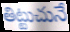
తిట్టుచునే